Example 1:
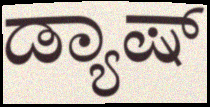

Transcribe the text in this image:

ಡ್ಯಾಷ್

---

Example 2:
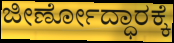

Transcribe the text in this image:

ಜೀರ್ಣೋದ್ಧಾರಕ್ಕೆ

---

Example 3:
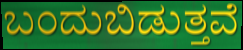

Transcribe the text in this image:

ಬಂದುಬಿಡುತ್ತವೆ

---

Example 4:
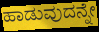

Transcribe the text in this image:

ಹಾಡುವುದನ್ನೇ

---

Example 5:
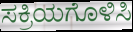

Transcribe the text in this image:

ಸಕ್ರಿಯಗೊಳಿಸಿ